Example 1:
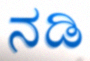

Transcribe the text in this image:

ನಡಿ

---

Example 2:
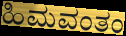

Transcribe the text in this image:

ಹಿಮವಂತಂ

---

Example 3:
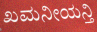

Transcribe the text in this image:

ಖಮನೀಯನ್ತಿ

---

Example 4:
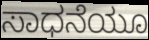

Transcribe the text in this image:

ಸಾಧನೆಯೂ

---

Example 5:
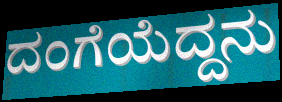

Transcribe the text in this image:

ದಂಗೆಯೆದ್ದನು